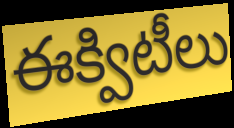
ఈక్విటీలు